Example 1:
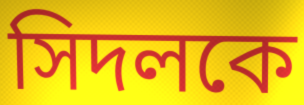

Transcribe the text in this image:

সিদলকে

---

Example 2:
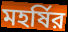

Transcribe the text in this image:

মহর্ষির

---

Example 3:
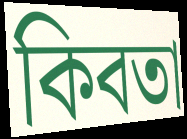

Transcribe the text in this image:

কিবতা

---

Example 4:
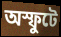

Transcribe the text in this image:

অস্ফুটে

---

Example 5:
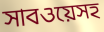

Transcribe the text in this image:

সাবওয়েসহ